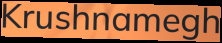
Krushnamegh